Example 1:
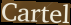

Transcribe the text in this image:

Cartel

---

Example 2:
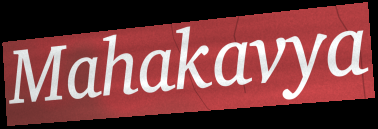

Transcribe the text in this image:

Mahakavya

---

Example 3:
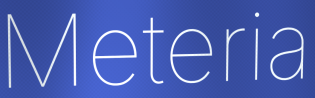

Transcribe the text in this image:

Meteria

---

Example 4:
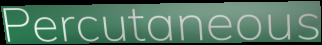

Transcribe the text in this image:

Percutaneous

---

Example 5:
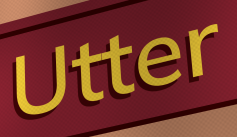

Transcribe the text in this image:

Utter